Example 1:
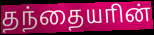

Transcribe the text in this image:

தந்தையரின்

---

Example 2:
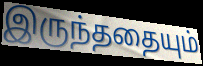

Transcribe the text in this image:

இருந்ததையும்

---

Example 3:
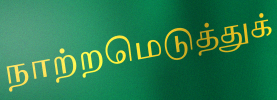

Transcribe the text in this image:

நாற்றமெடுத்துக்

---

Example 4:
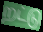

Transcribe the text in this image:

றட்டு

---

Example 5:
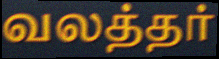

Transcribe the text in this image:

வலத்தர்